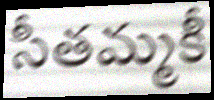
సీతమ్మకీ